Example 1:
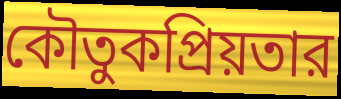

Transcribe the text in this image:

কৌতুকপ্রিয়তার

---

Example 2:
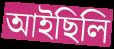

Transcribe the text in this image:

আইছিলি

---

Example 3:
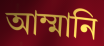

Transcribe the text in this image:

আম্মানি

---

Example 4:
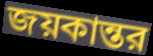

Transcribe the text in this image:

জয়কান্তর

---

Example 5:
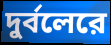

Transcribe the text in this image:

দুর্বলেরে